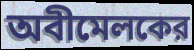
অবীমেলকের